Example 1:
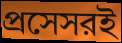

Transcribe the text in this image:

প্রসেসরই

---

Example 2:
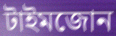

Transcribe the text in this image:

টাইমজোন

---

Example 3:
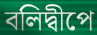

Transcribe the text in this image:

বলিদ্বীপে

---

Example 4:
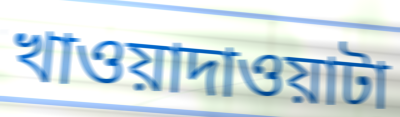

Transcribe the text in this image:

খাওয়াদাওয়াটা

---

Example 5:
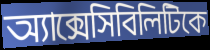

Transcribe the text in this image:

অ্যাক্সেসিবিলিটিকে